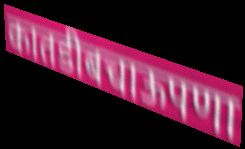
कातडीबचाऊपणा